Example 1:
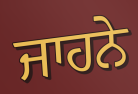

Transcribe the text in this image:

ਜਾਹਨੇ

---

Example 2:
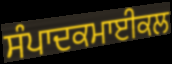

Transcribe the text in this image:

ਸੰਪਾਦਕਮਾਈਕਲ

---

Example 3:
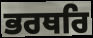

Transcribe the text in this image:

ਭਰਥਰਿ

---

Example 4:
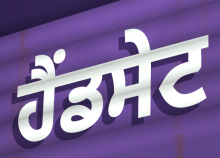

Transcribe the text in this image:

ਹੈਂਡਸੇਟ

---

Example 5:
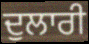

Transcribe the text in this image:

ਦੁਲਾਰੀ